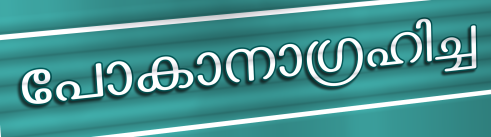
പോകാനാഗ്രഹിച്ച